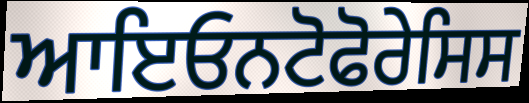
ਆਇਓਨਟੋਫੋਰੇਸਿਸ